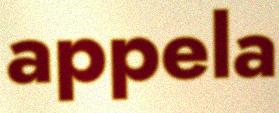
appela